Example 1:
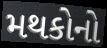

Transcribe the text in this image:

મથકોનો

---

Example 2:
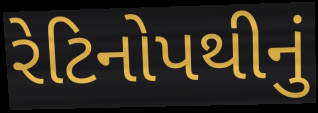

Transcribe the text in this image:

રેટિનોપથીનું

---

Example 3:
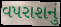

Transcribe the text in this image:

વપરાશનું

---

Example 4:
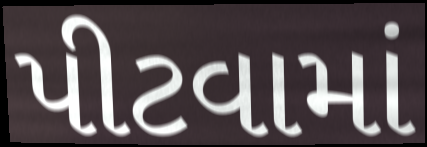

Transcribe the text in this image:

પીટવામાં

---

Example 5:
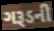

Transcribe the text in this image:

ગરૂડની